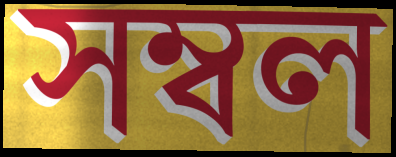
সম্বল